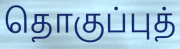
தொகுப்புத்